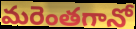
మరెంతగానో